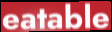
eatable